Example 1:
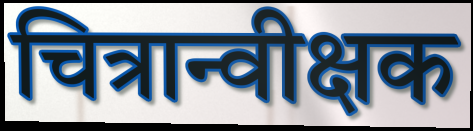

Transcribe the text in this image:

चित्रान्वीक्षक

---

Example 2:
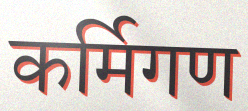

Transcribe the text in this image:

कर्मिगण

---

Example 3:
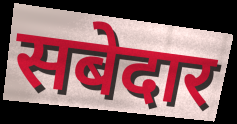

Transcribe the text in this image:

सबेदार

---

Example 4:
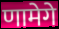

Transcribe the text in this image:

णामेगे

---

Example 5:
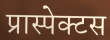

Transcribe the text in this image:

प्रास्पेक्टस